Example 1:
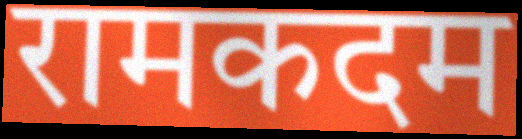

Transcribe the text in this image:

रामकदम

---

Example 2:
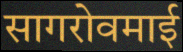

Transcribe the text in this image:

सागरोवमाई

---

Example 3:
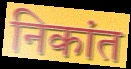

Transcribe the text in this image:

निकांत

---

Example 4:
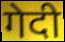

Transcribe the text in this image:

गेदी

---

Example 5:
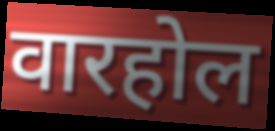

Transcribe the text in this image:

वारहोल